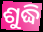
ଶୁଦ୍ଧି